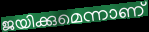
ജയിക്കുമെന്നാണ്